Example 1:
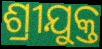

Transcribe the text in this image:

ଶ୍ରୀଯୁକ୍ତ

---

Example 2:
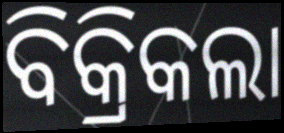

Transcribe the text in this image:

ବିକ୍ରିକଲା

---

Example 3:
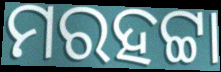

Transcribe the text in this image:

ମରହଟ୍ଟା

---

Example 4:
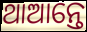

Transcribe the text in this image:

ଥାଆନ୍ତେ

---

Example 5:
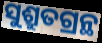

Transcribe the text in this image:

ସୁଶ୍ରୁତଗ୍ରନ୍ଥ